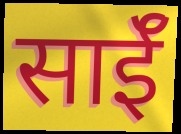
साईॅ